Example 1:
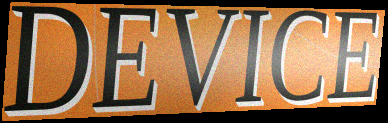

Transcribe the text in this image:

DEVICE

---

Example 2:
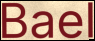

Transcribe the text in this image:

Bael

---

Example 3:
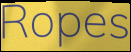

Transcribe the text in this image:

Ropes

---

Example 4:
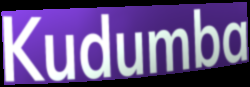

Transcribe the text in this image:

Kudumba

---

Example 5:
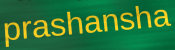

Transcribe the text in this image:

prashansha